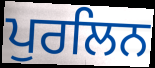
ਪੁਰਲਿਨ